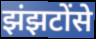
झंझटोंसे